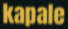
kapale